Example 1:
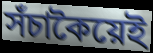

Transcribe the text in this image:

সঁচাকৈয়েই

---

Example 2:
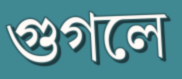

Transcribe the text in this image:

গুগলে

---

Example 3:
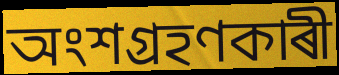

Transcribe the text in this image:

অংশগ্ৰহণকাৰী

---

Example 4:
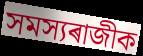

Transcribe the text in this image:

সমস্যৰাজীক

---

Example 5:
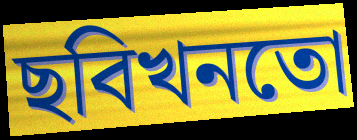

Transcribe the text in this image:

ছবিখনতো